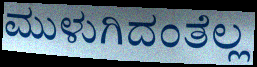
ಮುಳುಗಿದಂತೆಲ್ಲ